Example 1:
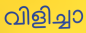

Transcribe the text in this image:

വിളിച്ചാ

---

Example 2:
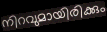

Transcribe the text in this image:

നിറവുമായിരിക്കും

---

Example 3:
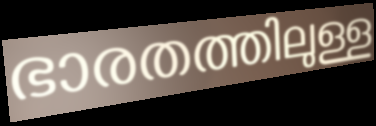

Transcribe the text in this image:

ഭാരതത്തിലുള്ള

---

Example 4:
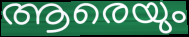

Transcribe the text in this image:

ആരെയും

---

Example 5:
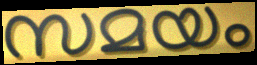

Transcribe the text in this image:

സമയം